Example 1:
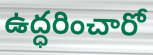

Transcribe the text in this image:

ఉద్ధరించారో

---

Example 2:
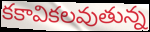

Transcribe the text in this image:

కకావికలవుతున్న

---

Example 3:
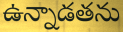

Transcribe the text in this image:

ఉన్నాడతను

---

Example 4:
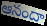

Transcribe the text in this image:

ఆనందా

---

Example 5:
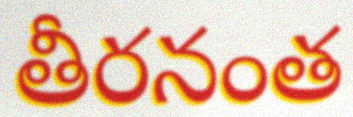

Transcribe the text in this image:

తీరనంత